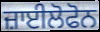
ਜ਼ਾਈਲੋਫੋਨ